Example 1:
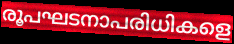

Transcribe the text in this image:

രൂപഘടനാപരിധികളെ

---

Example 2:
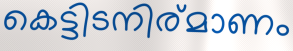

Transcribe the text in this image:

കെട്ടിടനിര്മാണം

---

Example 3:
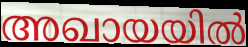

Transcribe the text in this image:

അഖായയിൽ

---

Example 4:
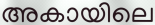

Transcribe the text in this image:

അകായിലെ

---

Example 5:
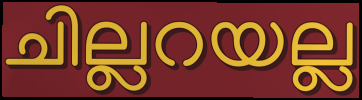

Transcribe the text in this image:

ചില്ലറയല്ല